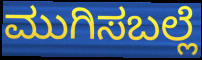
ಮುಗಿಸಬಲ್ಲೆ